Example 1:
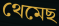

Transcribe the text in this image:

থেমেছ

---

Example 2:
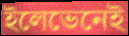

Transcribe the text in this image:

ইলেভেনেই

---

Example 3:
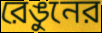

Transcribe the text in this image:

রেঙুনের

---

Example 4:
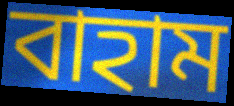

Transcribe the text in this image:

বাহাম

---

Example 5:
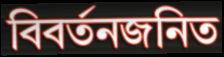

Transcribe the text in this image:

বিবর্তনজনিত